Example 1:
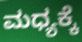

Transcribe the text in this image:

ಮಧ್ಯಕ್ಕೆ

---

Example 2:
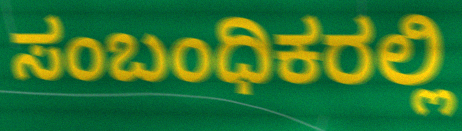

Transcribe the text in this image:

ಸಂಬಂಧಿಕರಲ್ಲಿ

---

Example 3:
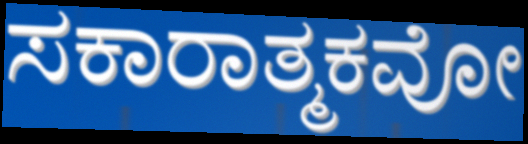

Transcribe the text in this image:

ಸಕಾರಾತ್ಮಕವೋ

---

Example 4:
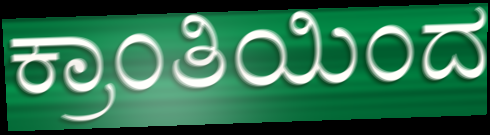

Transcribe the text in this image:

ಕ್ರಾಂತಿಯಿಂದ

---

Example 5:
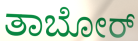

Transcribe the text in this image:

ತಾಬೋರ್